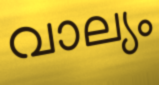
വാല്യം